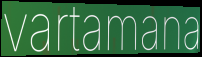
vartamana